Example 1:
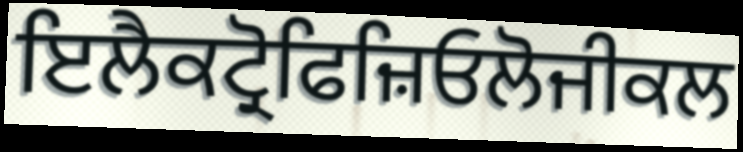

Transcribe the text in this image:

ਇਲੈਕਟ੍ਰੋਫਿਜ਼ਿਓਲੋਜੀਕਲ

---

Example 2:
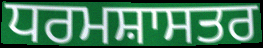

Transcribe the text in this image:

ਧਰਮਸ਼ਾਸਤਰ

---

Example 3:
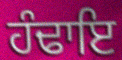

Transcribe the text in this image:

ਹੰਢਾਇ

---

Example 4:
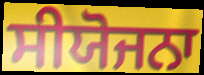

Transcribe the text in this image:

ਸੀਯੋਜਨਾ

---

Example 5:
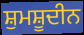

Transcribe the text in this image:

ਸ਼ੁਮਸ਼ੂਦੀਨ